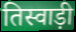
तिस्वाड़ी